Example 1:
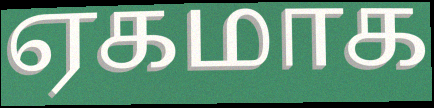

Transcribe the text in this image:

ஏகமாக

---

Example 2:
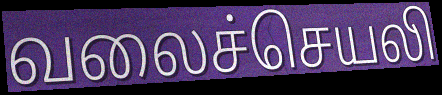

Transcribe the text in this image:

வலைச்செயலி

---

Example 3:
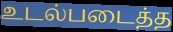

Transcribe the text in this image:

உடல்படைத்த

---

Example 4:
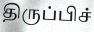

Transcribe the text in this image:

திருப்பிச்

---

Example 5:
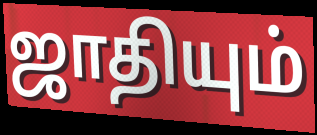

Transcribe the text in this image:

ஜாதியும்